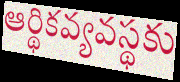
ఆర్థికవ్యవస్థకు